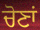
ਚੋਣਾਂ